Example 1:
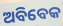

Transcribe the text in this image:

ଅବିବେକ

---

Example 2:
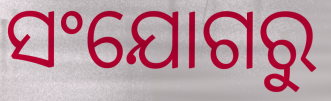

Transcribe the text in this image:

ସଂଯୋଗରୁ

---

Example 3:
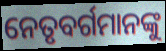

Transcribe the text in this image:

ନେତୃବର୍ଗମାନଙ୍କୁ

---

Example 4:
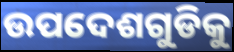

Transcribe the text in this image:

ଉପଦେଶଗୁଡିକୁ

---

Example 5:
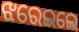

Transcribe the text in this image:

ଝରେଇଲେ